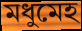
মধুমেহ